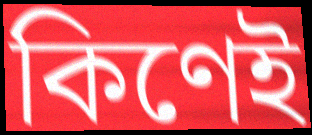
কিণেই